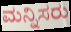
ಮನ್ನಿಸರು